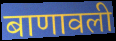
बाणावली